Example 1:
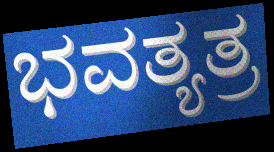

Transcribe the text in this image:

ಭವತ್ಯತ್ರ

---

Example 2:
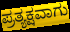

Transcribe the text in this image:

ಪ್ರತ್ಯಕ್ಷವಾಗು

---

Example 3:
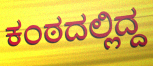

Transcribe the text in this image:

ಕಂಠದಲ್ಲಿದ್ದ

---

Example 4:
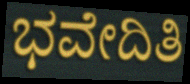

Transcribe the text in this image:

ಭವೇದಿತಿ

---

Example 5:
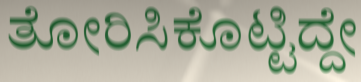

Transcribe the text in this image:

ತೋರಿಸಿಕೊಟ್ಟಿದ್ದೇ